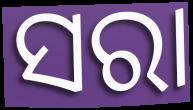
ସରା